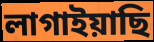
লাগাইয়াছি